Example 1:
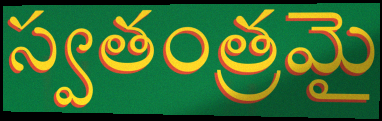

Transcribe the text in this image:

స్వతంత్రమై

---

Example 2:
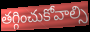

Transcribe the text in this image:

తగ్గించుకోవాల్సి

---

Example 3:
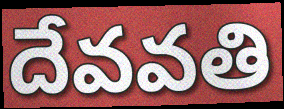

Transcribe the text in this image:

దేవవతి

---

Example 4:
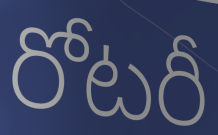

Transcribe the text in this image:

రోటరీ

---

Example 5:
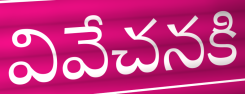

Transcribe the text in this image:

వివేచనకి